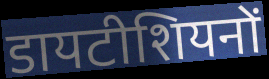
डायटीशियनों